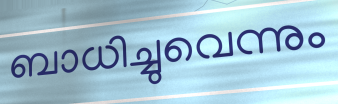
ബാധിച്ചുവെന്നും